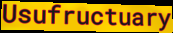
Usufructuary